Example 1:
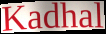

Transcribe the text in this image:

Kadhal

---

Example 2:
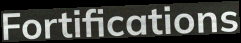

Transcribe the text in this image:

Fortifications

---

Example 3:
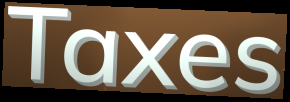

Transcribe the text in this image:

Taxes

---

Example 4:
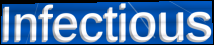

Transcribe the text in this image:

Infectious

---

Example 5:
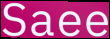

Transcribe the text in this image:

Saee